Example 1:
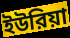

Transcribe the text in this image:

ইউরিয়া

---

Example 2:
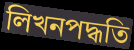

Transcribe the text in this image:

লিখনপদ্ধতি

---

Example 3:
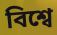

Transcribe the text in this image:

বিশ্বে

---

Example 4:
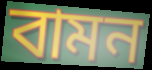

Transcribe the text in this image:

বামন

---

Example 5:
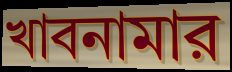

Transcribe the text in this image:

খাবনামার